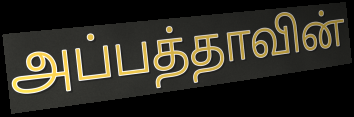
அப்பத்தாவின்